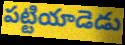
పట్టియాడెడు